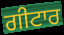
ਗੀਟਾਰ